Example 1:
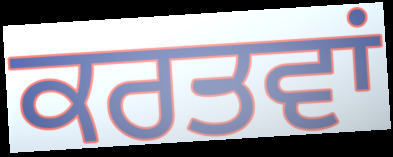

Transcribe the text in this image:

ਕਰਤਵਾਂ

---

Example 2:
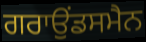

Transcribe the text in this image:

ਗਰਾਉਂਡਸਮੈਨ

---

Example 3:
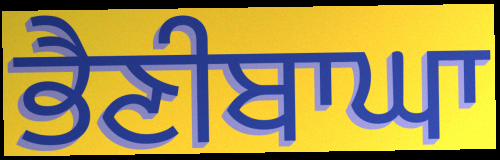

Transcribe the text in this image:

ਭੈਣੀਬਾਘਾ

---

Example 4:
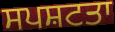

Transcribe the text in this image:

ਸਪਸ਼ਟਤਾ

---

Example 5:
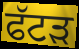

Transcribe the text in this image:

ਫੱਟੜ